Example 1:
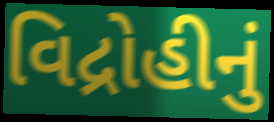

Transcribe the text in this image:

વિદ્રોહીનું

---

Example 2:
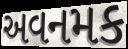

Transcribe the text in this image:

અવનમક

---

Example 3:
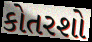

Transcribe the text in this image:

કોતરશો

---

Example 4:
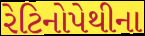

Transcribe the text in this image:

રેટિનોપેથીના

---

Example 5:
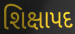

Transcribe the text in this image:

શિક્ષાપદ